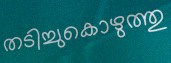
തടിച്ചുകൊഴുത്തു